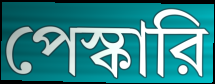
পেস্কারি